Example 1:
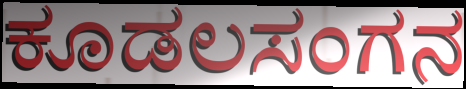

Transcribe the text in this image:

ಕೂಡಲಸಂಗನ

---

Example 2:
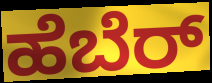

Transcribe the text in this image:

ಹೆಬೆರ್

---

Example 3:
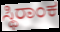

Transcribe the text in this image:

ಸ್ಥಿರಾಂಕ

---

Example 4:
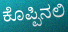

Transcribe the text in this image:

ಕೊಪ್ಪಿನಲಿ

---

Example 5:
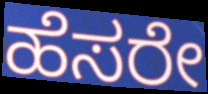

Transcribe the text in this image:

ಹೆಸರೇ